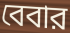
বেবার